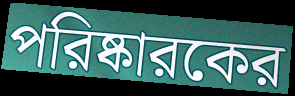
পরিষ্কারকের